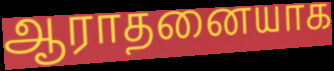
ஆராதனையாக